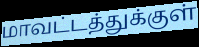
மாவட்டத்துக்குள்